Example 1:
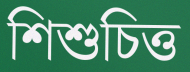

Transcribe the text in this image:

শিশুচিত্ত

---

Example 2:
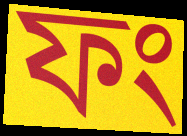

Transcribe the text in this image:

ফং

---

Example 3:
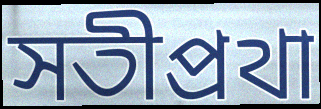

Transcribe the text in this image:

সতীপ্রথা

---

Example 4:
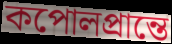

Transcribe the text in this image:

কপোলপ্রান্তে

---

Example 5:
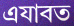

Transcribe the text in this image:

এযাবত